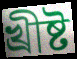
খ্রীষ্ট